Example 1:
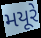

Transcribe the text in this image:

મયૂરે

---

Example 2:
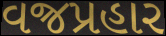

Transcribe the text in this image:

વજ્રપ્રહાર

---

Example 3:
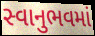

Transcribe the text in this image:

સ્વાનુભવમાં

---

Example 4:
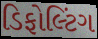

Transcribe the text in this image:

ડિફોલ્ટિંગ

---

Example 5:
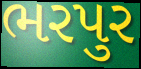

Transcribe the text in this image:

ભરપુર